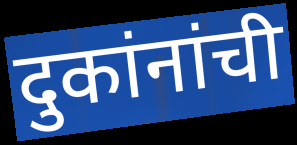
दुकांनांची